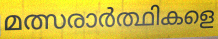
മത്സരാർത്ഥികളെ